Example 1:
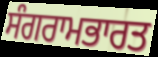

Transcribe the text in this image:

ਸੰਗਰਾਮਭਾਰਤ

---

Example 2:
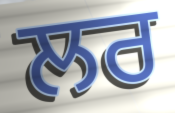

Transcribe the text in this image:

ਲਰ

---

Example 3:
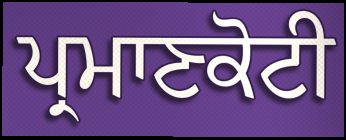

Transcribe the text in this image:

ਪ੍ਰਮਾਣਕੋਟੀ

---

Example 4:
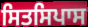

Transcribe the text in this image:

ਸਿਤਸਿਪਾਸ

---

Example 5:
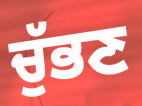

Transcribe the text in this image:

ਚੁੱਭਣ